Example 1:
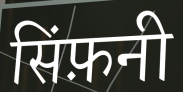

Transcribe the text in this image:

सिंफ़नी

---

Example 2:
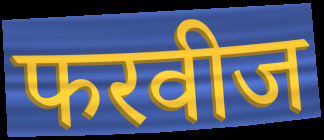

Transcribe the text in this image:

फरवीज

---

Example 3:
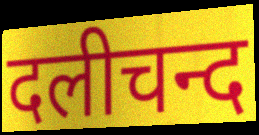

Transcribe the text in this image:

दलीचन्द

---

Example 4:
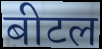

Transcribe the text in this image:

बीटल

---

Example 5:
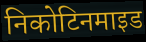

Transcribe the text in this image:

निकोटिनमाइड